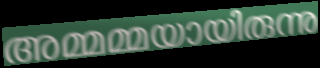
അമ്മമ്മയായിരുന്നു